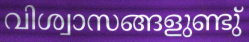
വിശ്വാസങ്ങളുണ്ടു്